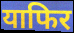
याफिर